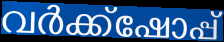
വർക്ക്ഷോപ്പ്